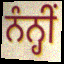
ਨੰਨ੍ਹੀਂ